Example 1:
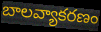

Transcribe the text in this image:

బాలవ్యాకరణం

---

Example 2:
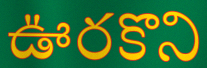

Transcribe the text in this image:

ఊరకొని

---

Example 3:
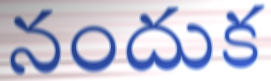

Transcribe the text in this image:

నందుక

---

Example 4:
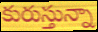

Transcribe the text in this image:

కురుస్తున్నా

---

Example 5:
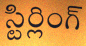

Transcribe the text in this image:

స్టిర్లింగ్